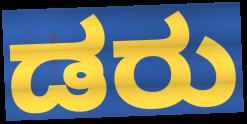
ಡರು